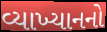
વ્યાખ્યાનનો